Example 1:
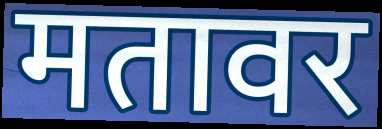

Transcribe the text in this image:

मतावर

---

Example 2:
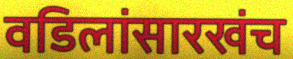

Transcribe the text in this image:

वडिलांसारखंच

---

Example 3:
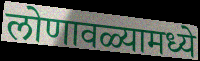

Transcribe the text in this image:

लोणावळ्यामध्ये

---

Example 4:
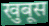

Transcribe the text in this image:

खुबूस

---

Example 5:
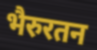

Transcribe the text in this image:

भैरुरतन